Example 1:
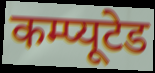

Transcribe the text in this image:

कम्प्यूटेड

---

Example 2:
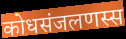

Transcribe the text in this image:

कोधसंजलणस्स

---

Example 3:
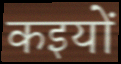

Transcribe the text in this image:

कइयों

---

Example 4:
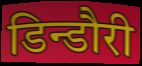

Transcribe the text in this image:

डिन्डौरी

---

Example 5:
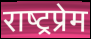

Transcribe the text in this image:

राष्ट्रप्रेम